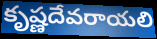
కృష్ణదేవరాయలి